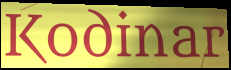
Kodinar